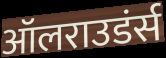
ऑलराउडंर्स